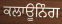
ਕਲਾਊਨਿੰਗ